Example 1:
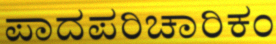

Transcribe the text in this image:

ಪಾದಪರಿಚಾರಿಕಂ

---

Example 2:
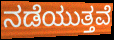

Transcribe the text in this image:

ನಡೆಯುತ್ತವೆ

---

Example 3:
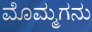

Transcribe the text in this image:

ಮೊಮ್ಮಗನು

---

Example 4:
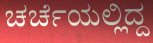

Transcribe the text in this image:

ಚರ್ಚೆಯಲ್ಲಿದ್ದ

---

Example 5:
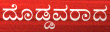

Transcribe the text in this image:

ದೊಡ್ಡವರಾದ